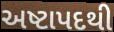
અષ્ટાપદથી